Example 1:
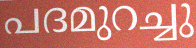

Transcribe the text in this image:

പദമുറച്ചു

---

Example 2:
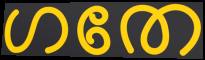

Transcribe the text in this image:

ഗതേ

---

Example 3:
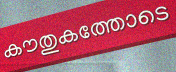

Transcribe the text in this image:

കൗതുകത്തോടെ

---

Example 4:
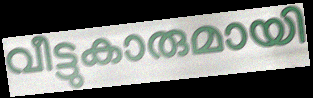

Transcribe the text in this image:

വീട്ടുകാരുമായി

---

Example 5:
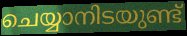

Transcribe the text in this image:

ചെയ്യാനിടയുണ്ട്